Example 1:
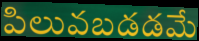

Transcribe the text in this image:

పిలువబడడమే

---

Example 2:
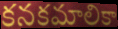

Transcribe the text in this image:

కనకమాలికా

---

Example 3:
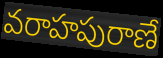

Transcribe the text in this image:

వరాహపురాణే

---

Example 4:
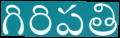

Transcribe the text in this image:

గిరిపతి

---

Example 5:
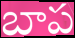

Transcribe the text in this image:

బాప